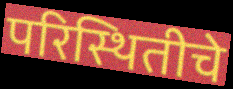
परिस्थितीचे